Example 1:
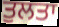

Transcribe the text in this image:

ਤੁਲਤਾ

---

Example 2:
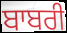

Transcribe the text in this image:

ਬਾਬਰੀ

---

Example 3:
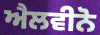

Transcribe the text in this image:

ਐਲਵੀਨੋ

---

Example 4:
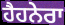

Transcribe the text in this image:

ਹੈਹਨੇਰਾ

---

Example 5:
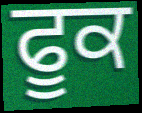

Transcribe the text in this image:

ਫੂਕ